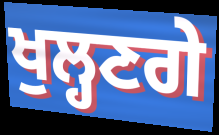
ਖੁਲ੍ਹਣਗੇ